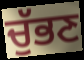
ਚੁੱਭਣ